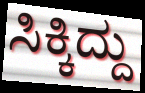
ಸಿಕ್ಕಿದ್ದು